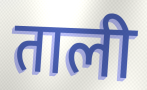
ताली